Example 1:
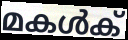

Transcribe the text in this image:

മകൾക്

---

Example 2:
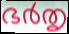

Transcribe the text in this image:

ഭർതൃ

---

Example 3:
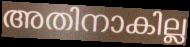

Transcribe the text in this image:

അതിനാകില്ല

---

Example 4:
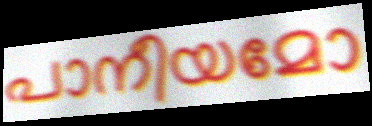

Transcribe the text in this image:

പാനീയമോ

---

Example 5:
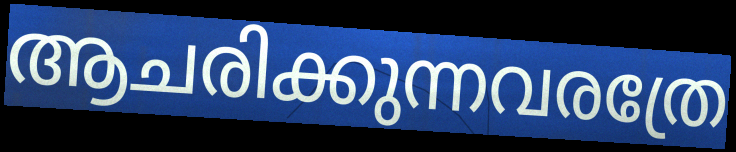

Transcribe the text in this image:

ആചരിക്കുന്നവരത്രേ